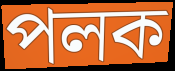
পলক